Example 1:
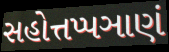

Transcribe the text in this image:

સહોત્તપ્પઞાણં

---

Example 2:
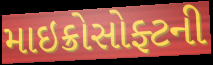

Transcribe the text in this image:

માઇક્રોસોફ્ટની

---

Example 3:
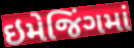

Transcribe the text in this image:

ઇમેજિંગમાં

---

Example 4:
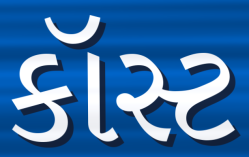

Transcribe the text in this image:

કૉસ્ટ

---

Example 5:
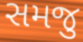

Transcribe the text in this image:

સમજુ